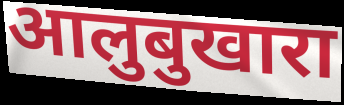
आलुबुखारा